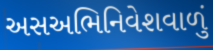
અસઅભિનિવેશવાળું